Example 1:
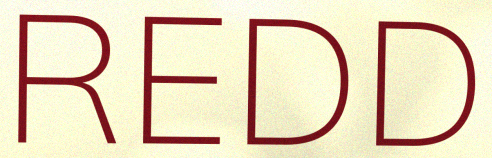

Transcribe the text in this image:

REDD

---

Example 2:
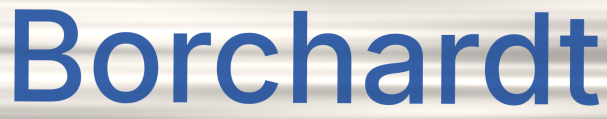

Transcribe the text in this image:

Borchardt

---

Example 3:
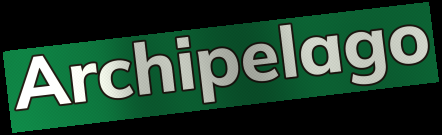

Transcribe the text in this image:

Archipelago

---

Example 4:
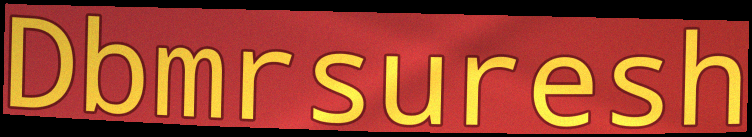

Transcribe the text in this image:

Dbmrsuresh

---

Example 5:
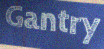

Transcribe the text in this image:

Gantry